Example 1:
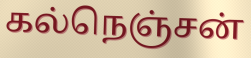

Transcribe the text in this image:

கல்நெஞ்சன்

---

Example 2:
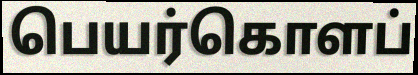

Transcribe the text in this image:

பெயர்கொளப்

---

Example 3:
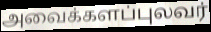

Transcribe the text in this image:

அவைக்களப்புலவர்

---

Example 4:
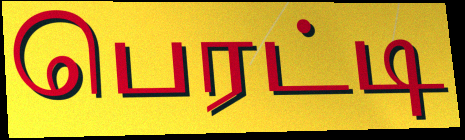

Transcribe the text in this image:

பெரட்டி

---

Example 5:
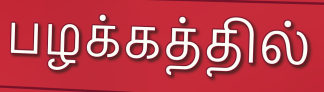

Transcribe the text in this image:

பழக்கத்தில்